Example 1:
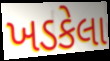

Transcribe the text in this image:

ખડકેલા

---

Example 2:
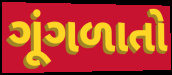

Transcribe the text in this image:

ગૂંગળાતો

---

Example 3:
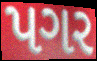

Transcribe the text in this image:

પગર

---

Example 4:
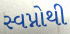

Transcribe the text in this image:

સ્વપ્નોથી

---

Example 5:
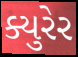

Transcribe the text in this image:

ક્યુરેર